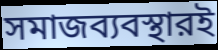
সমাজব্যবস্থারই